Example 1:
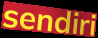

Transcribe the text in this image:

sendiri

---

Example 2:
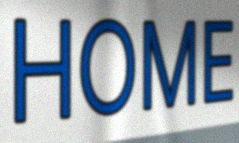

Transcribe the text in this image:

HOME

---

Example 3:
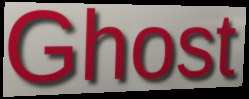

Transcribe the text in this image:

Ghost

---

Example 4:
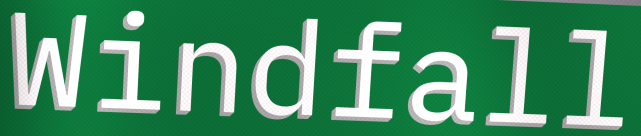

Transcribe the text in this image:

Windfall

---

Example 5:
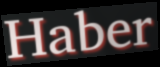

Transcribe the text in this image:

Haber